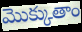
మొక్కుతాం